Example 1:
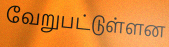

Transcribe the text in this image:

வேறுபட்டுள்ளன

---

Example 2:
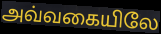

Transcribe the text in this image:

அவ்வகையிலே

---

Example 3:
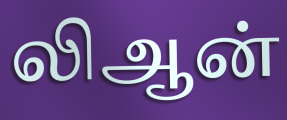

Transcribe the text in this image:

லிஆன்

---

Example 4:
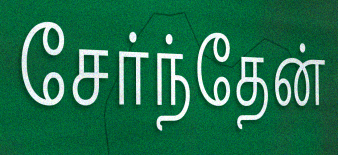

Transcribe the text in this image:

சேர்ந்தேன்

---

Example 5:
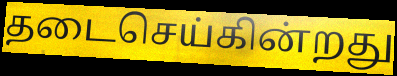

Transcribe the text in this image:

தடைசெய்கின்றது